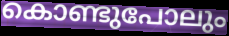
കൊണ്ടുപോലും